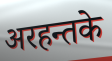
अरहन्तके